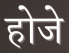
होजे